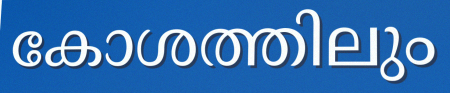
കോശത്തിലും